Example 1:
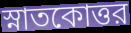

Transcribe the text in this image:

স্নাতকোত্তর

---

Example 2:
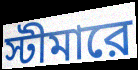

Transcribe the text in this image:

স্টীমারে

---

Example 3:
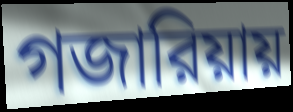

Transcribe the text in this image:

গজারিয়ায়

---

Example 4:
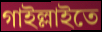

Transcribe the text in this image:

গাইল্লাইতে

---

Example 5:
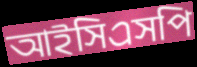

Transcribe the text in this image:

আইসিএসপি